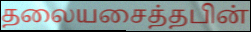
தலையசைத்தபின்